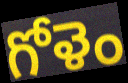
గోళెం